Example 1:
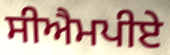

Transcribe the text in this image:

ਸੀਐਮਪੀਏ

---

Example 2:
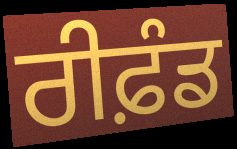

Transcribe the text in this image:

ਰੀਫ਼ੰਡ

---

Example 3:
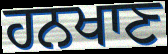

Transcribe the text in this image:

ਹਨਖਾਣ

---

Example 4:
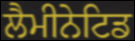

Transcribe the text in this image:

ਲੈਮੀਨੇਟਿਡ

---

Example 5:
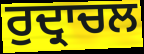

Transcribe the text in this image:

ਰੁਦ੍ਰਾਚਲ